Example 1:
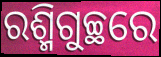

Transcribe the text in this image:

ରଶ୍ମିଗୁଚ୍ଛରେ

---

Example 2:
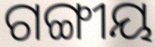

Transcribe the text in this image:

ଗଙ୍ଗୀୟ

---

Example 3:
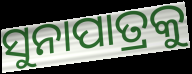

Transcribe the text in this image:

ସୁନାପାତ୍ରକୁ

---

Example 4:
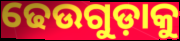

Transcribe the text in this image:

ଢେଉଗୁଡ଼ାକୁ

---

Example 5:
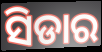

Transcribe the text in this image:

ସିଡାର